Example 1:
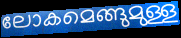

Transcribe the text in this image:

ലോകമെങ്ങുമുള്ള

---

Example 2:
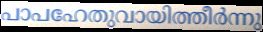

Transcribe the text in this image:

പാപഹേതുവായിത്തീർന്നു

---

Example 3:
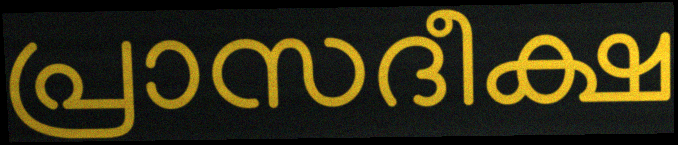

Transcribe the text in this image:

പ്രാസദീക്ഷ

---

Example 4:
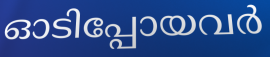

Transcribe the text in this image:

ഓടിപ്പോയവർ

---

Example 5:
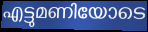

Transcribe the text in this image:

എട്ടുമണിയോടെ